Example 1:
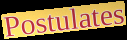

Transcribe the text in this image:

Postulates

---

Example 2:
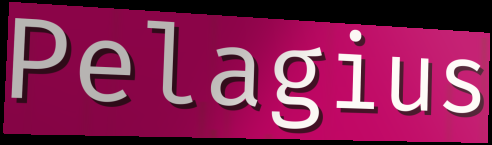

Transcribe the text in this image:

Pelagius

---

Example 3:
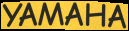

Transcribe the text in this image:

YAMAHA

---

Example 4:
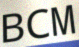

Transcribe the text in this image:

BCM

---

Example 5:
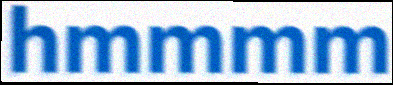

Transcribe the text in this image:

hmmmm